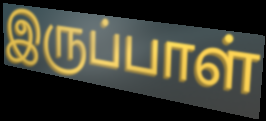
இருப்பாள்